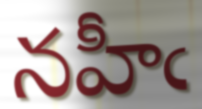
నహీఁ